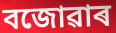
বজোৱাৰ